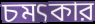
চমৎকার